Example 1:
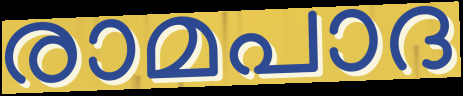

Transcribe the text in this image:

രാമപാദ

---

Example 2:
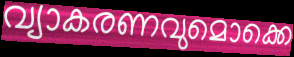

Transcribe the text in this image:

വ്യാകരണവുമൊക്കെ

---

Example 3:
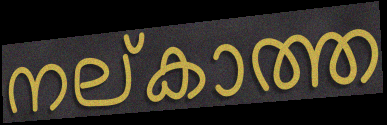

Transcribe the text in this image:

നല്കാത്ത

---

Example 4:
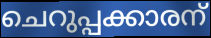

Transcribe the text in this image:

ചെറുപ്പക്കാരന്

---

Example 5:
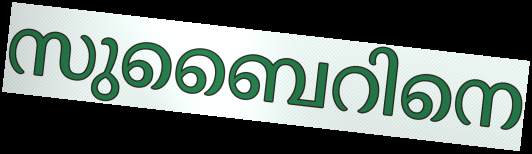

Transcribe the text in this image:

സുബൈറിനെ